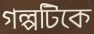
গল্পটিকে